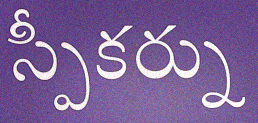
స్పీకర్ను